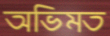
অভিমত